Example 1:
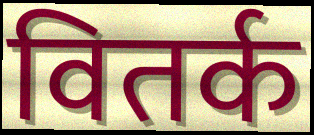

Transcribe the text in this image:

वितर्क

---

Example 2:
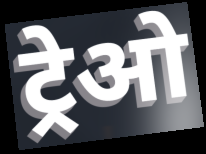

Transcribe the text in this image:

ट्रेओ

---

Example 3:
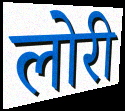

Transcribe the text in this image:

लोरी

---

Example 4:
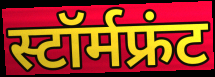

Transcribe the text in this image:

स्टॉर्मफ्रंट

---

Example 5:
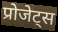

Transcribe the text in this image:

प्रोजेट्स